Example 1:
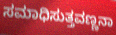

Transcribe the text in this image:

ಸಮಾಧಿಸುತ್ತವಣ್ಣನಾ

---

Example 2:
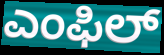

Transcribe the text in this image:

ಎಂಫಿಲ್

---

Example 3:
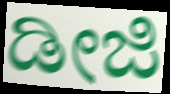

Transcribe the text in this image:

ಡೀಜಿ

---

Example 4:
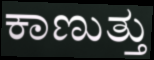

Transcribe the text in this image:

ಕಾಣುತ್ತು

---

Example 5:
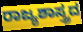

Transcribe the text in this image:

ರಾಜ್ಯಶಾಸ್ತ್ರದ